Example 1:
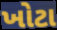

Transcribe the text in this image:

ખોટા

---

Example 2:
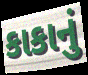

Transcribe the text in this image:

કાકાનું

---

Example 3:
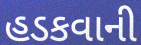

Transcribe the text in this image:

હડકવાની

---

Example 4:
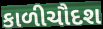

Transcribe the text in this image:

કાળીચૌદશ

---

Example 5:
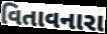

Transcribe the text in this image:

વિતાવનારા